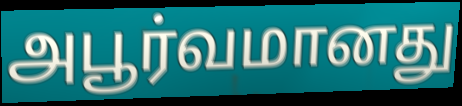
அபூர்வமானது